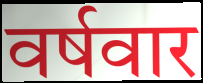
वर्षवार